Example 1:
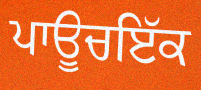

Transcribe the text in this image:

ਪਾਊਚਇੱਕ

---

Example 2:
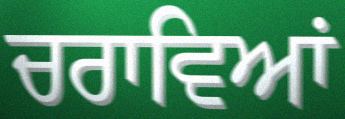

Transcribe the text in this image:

ਚਰਾਵਿਆਂ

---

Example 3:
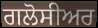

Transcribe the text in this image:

ਗਲੋਸੀਅਰ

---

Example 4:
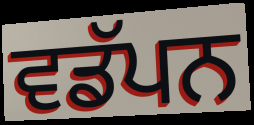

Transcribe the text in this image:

ਵਡੱਪਨ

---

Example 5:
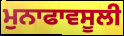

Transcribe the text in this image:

ਮੁਨਾਫਾਵਸੂਲੀ